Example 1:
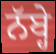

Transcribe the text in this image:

ਨੱਬ੍ਹੇ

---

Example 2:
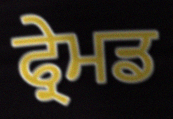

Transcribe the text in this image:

ਫ੍ਰੇਮਡ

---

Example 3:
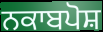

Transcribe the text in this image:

ਨਕਾਬਪੋਸ਼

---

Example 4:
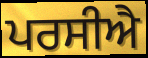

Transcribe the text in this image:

ਪਰਸੀਐ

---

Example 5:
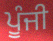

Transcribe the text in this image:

ਪੂੰਜੀ